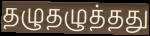
தழுதழுத்தது